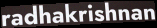
radhakrishnan